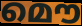
മൌ